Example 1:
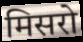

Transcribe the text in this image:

मिसरो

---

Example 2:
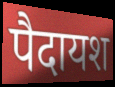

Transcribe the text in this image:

पैदायश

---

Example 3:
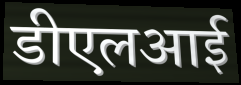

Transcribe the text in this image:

डीएलआई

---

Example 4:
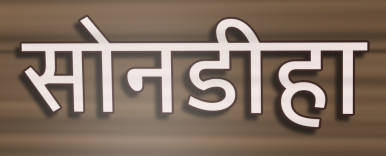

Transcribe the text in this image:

सोनडीहा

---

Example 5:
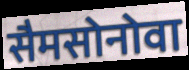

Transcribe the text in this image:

सैमसोनोवा